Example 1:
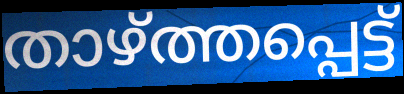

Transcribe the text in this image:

താഴ്ത്തപ്പെട്ട്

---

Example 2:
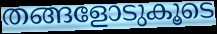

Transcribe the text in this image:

തങ്ങളോടുകൂടെ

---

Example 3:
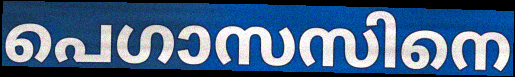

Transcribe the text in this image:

പെഗാസസിനെ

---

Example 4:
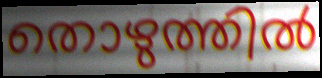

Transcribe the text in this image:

തൊഴുത്തിൽ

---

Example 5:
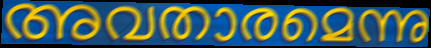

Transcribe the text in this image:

അവതാരമെന്നു